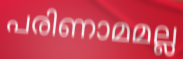
പരിണാമമല്ല